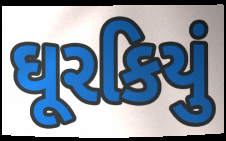
ઘૂરકિયું